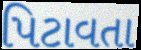
પિટાવતા